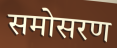
समोसरण